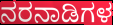
ನರನಾಡಿಗಳ